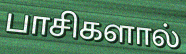
பாசிகளால்